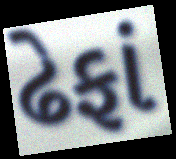
ઢેફાં